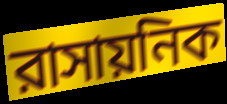
রাসায়নিক